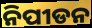
ନିପୀଡନ